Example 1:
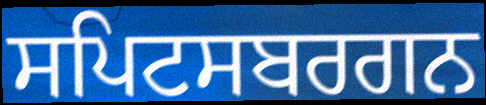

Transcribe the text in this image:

ਸਪਿਟਸਬਰਗਨ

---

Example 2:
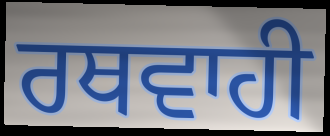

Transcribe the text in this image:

ਰਥਵਾਹੀ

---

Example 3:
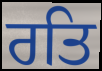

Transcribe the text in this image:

ਰਤਿ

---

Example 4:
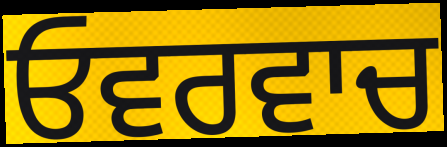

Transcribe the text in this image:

ਓਵਰਵਾਚ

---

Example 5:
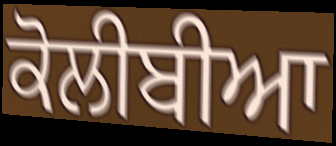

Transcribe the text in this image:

ਕੋਲੀਬੀਆ